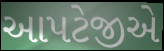
આપટેજીએ